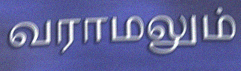
வராமலும்